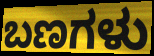
ಬಣಗಳು